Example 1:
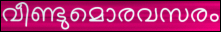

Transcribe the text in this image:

വീണ്ടുമൊരവസരം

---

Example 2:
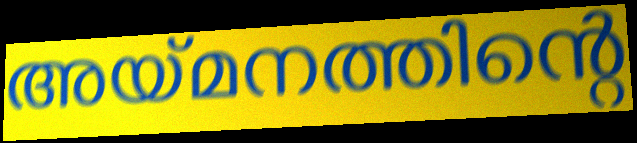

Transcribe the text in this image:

അയ്മനത്തിന്റെ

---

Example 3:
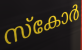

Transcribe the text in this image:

സ്‌കോർ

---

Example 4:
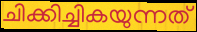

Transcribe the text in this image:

ചിക്കിച്ചികയുന്നത്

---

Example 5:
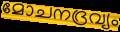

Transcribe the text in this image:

മോചനദ്രവ്യം